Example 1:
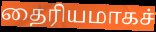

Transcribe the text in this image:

தைரியமாகச்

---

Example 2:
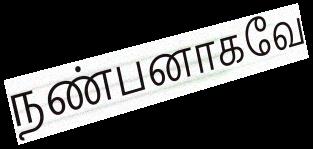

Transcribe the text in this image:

நண்பனாகவே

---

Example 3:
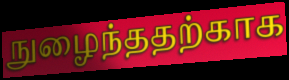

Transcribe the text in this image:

நுழைந்ததற்காக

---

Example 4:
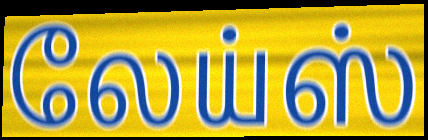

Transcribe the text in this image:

லேய்ஸ்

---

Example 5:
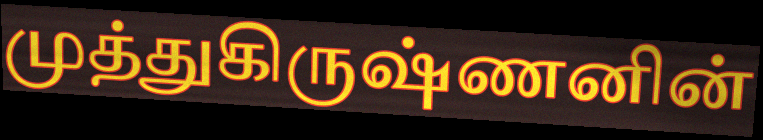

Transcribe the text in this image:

முத்துகிருஷ்ணனின்